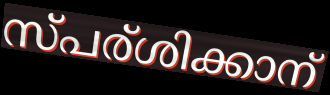
സ്പര്ശിക്കാന്